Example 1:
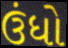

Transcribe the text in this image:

ઉંધો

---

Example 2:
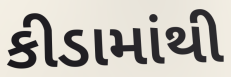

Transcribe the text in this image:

કીડામાંથી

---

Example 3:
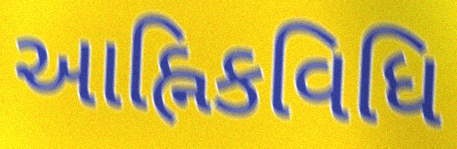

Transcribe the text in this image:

આહ્નિકવિધિ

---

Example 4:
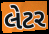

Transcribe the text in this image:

લેટર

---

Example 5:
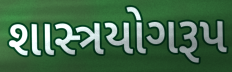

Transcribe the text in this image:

શાસ્ત્રયોગરૂપ